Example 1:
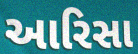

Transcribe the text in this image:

આરિસા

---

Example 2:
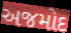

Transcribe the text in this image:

અજમોદ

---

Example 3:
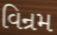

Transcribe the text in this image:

વિન્રમ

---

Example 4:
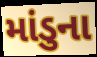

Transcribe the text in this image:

માંડુના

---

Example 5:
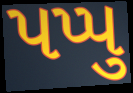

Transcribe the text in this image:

પપ્પુ